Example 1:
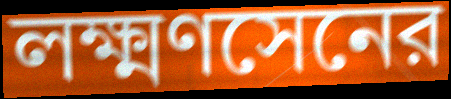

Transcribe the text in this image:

লক্ষ্মণসেনের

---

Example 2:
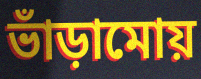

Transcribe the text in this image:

ভাঁড়ামোয়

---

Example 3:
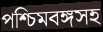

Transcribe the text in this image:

পশ্চিমবঙ্গসহ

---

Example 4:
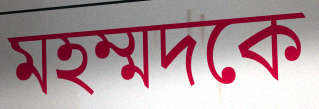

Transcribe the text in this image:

মহম্মদকে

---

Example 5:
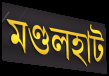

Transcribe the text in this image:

মণ্ডলহাট